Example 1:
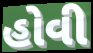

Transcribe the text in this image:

હોવી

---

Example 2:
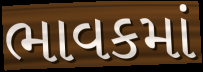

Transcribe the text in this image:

ભાવકમાં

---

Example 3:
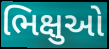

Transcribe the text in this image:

ભિક્ષુઓ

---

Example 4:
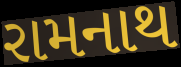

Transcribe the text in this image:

રામનાથ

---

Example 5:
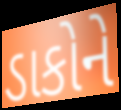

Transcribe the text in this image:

ડાકોને